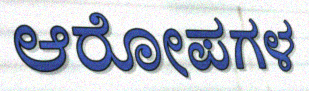
ಆರೋಪಗಳ